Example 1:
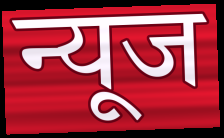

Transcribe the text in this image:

न्‍यूज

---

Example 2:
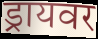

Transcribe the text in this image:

ड्रायवर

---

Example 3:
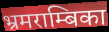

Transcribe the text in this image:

भ्रमराम्बिका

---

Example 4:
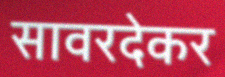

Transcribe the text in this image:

सावरदेकर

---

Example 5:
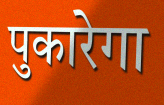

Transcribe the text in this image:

पुकारेगा